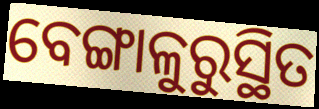
ବେଙ୍ଗାଳୁରୁସ୍ଥିତ